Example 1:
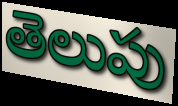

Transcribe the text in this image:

తెలుపు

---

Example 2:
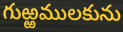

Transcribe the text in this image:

గుఱ్ఱములకును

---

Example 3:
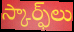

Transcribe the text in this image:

స్కార్ఫ్‌లు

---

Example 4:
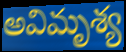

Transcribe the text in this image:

అవిమృశ్య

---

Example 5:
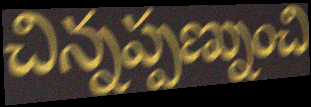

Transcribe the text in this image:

చిన్నప్పణ్నుంచి